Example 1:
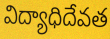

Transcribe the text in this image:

విద్యాధిదేవత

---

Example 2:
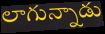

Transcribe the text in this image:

లాగున్నాడు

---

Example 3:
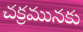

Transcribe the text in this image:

చక్రమునకు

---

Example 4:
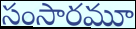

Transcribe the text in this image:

సంసారమూ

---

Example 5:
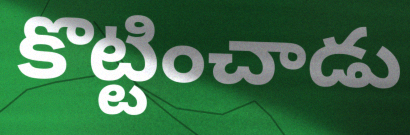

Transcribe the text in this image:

కొట్టించాడు